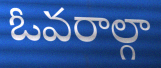
ఓవరాల్గా